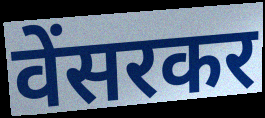
वेंसरकर